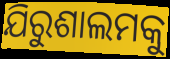
ଯିରୁଶାଲମକୁ